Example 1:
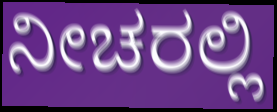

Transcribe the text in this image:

ನೀಚರಲ್ಲಿ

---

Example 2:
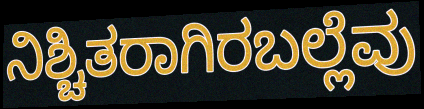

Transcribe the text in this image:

ನಿಶ್ಚಿತರಾಗಿರಬಲ್ಲೆವು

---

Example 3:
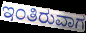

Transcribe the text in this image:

ಇಂತಿರುವಾಗ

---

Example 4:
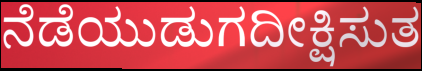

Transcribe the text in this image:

ನೆಡೆಯುಡುಗದೀಕ್ಷಿಸುತ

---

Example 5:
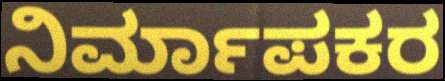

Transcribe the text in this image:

ನಿರ್ಮಾಪಕರ